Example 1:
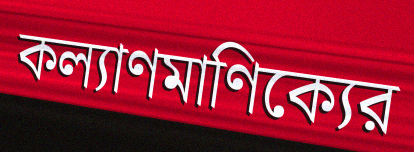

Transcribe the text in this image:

কল্যাণমাণিক্যের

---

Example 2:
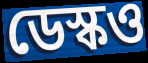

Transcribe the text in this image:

ডেস্কও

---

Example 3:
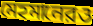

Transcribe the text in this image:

মেহমানেরও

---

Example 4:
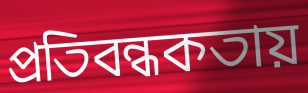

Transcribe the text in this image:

প্রতিবন্ধকতায়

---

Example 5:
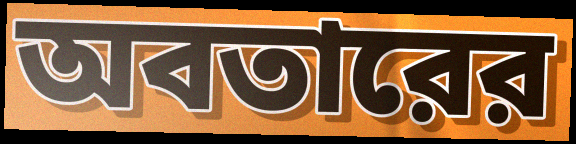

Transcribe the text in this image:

অবতারের